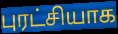
புரட்சியாக